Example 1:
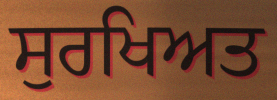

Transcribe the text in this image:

ਸੁਰਖਿਅਤ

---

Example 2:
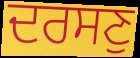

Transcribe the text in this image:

ਦਰਸਣੁ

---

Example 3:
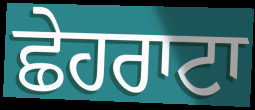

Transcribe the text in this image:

ਛੇਹਰਾਟਾ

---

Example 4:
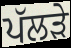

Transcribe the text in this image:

ਪੱਲੜੇ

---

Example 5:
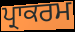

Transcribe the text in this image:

ਪ੍ਰਾਕਰਮ